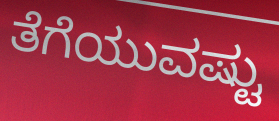
ತೆಗೆಯುವಷ್ಟು